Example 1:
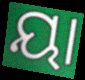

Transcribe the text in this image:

ୟା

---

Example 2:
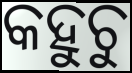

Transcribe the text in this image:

କହୁଚୁ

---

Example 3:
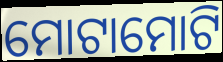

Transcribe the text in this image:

ମୋଟାମୋଟି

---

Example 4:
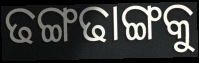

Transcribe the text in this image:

ଢଙ୍ଗଢାଙ୍ଗକୁ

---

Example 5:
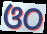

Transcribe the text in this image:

ଓଠ